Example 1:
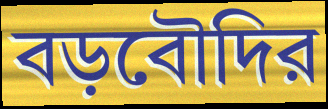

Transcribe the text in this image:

বড়বৌদির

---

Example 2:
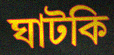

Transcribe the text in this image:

ঘাটকি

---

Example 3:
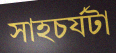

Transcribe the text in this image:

সাহচর্যটা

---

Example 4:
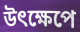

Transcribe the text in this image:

উৎক্ষেপে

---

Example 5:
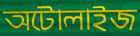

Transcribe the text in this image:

অটোলাইজ